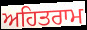
ਅਹਿਤਰਾਮ